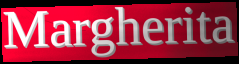
Margherita